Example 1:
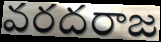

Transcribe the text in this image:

వరదరాజ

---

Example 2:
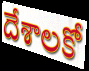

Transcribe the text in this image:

దేశాలకో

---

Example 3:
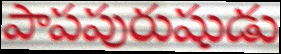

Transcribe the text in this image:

పాపపురుషుడు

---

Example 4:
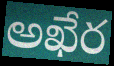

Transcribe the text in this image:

అఖేర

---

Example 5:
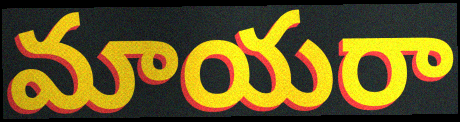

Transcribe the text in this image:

మాయరా